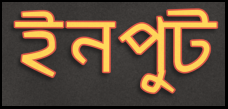
ইনপুট